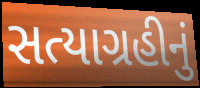
સત્યાગ્રહીનું